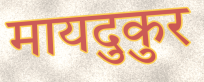
मायदुकुर